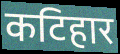
कटिहार